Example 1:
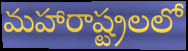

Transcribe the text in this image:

మహారాష్ట్రలలో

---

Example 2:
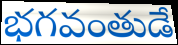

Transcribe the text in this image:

భగవంతుడే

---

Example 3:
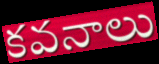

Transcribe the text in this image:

కవనాలు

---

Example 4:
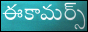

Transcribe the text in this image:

ఈకామర్స్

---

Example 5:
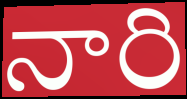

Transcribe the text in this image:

నారి